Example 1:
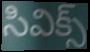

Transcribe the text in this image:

సివిక్స్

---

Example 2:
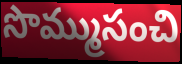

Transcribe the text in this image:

సొమ్ముసంచి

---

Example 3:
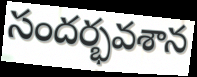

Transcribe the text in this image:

సందర్భవశాన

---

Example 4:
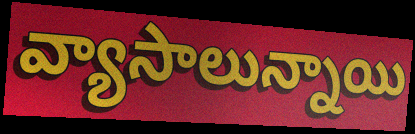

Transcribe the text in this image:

వ్యాసాలున్నాయి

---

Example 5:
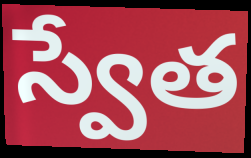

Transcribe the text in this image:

స్వేత